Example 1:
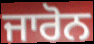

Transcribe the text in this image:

ਜਾਰੋਨ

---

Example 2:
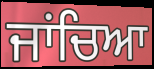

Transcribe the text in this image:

ਜਾਂਚਿਆ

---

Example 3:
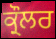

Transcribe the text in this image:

ਕ੍ਰੌਲਰ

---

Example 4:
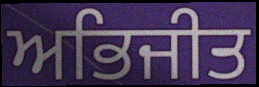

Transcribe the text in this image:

ਅਭਿਜੀਤ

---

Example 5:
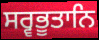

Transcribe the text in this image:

ਸਰ੍ਵਭੂਤਾਨਿ